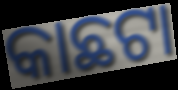
କାଛଟା